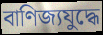
বাণিজ্যযুদ্ধে